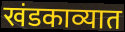
खंडकाव्यात